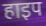
हाइप